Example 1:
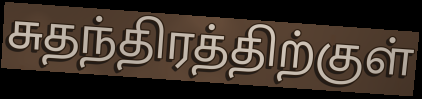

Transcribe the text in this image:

சுதந்திரத்திற்குள்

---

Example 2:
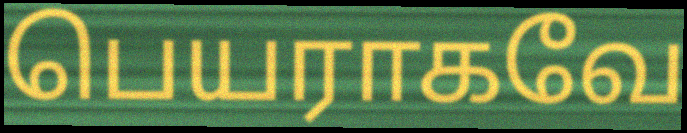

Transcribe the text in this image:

பெயராகவே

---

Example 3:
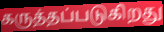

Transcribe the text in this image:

கருத்தப்படுகிறது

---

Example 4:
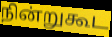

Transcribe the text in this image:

நின்றுகூட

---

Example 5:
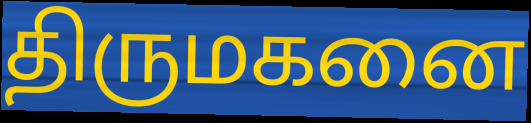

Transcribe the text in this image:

திருமகனை